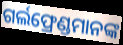
ଗର୍ଲଫ୍ରେଣ୍ଡମାନଙ୍କ